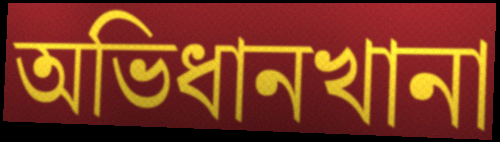
অভিধানখানা